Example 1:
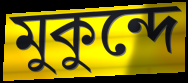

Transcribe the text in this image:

মুকুন্দে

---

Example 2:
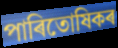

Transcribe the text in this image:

পাৰিতোষিকৰ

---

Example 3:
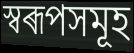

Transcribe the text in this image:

স্বৰূপসমূহ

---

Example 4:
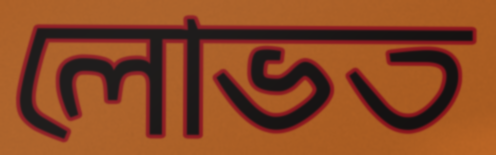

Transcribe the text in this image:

লোভত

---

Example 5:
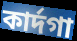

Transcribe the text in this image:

কাৰ্দগা